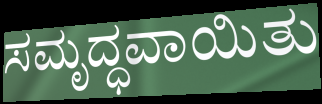
ಸಮೃದ್ಧವಾಯಿತು